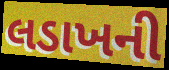
લડાખની